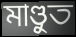
মাণ্ডুত